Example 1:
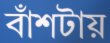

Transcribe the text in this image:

বাঁশটায়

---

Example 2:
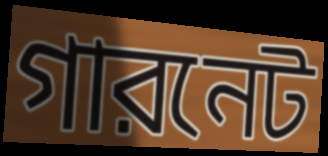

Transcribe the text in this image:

গারনেট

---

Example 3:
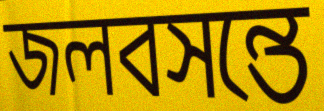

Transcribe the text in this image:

জলবসন্তে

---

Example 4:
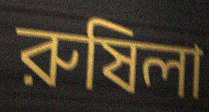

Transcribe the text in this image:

রুষিলা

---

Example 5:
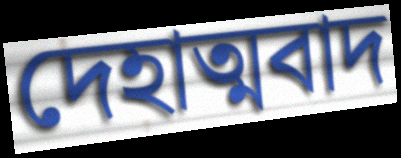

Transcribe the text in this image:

দেহাত্মবাদ